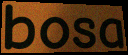
bosa